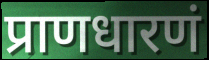
प्राणधारणं